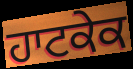
ਹਾਟਕੇਕ